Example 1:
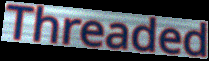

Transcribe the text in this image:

Threaded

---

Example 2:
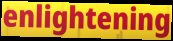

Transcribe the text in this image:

enlightening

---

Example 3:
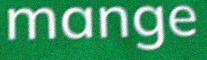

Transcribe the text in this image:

mange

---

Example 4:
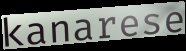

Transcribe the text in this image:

kanarese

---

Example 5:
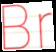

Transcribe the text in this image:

Br